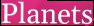
Planets